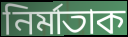
নিৰ্মাতাক